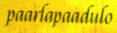
paarlapaadulo